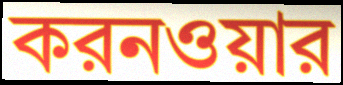
করনওয়ার